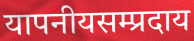
यापनीयसम्प्रदाय